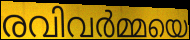
രവിവർമ്മയെ